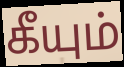
கீயும்